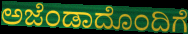
ಅಜೆಂಡಾದೊಂದಿಗೆ